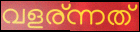
വളര്ന്നത്